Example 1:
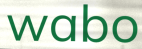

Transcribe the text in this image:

wabo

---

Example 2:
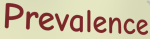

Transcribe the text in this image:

Prevalence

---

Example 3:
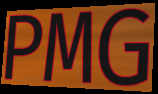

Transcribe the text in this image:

PMG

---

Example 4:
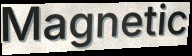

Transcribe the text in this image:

Magnetic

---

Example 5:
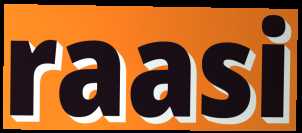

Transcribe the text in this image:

raasi